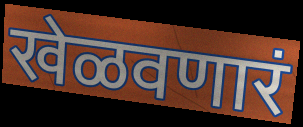
खेळवणारं